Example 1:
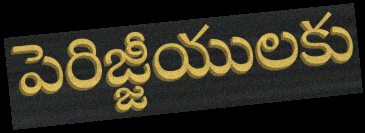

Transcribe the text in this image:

పెరిజ్జీయులకు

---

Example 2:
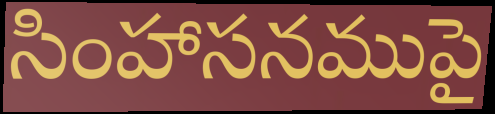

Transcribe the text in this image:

సింహాసనముపై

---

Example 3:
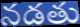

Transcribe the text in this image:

నడతు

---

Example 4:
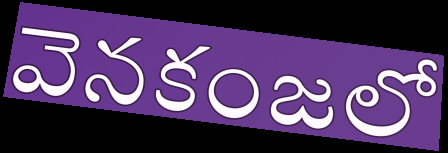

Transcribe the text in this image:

వెనకంజలో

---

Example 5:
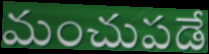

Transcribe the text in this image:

మంచుపడే